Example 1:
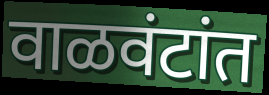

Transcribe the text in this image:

वाळवंटांत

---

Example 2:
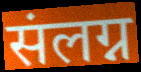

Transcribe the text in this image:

संलग्न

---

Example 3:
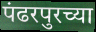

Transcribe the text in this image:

पंढरपुरच्या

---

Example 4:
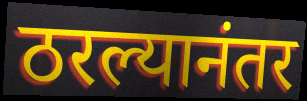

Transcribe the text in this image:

ठरल्यानंतर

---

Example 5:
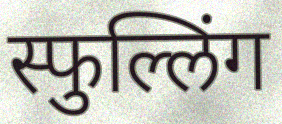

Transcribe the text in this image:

स्फुल्लिंग